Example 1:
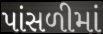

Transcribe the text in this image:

પાંસળીમાં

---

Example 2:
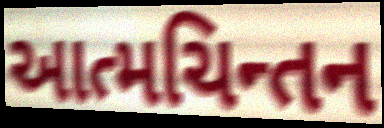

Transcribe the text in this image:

આત્મચિન્તન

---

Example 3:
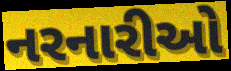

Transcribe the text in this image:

નરનારીઓ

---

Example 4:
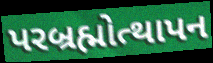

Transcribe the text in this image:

પરબ્રહ્મોત્થાપન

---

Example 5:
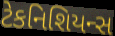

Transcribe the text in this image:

ટેકનિશિયન્સ